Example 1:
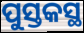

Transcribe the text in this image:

ପୁସ୍ତକସ୍ଥ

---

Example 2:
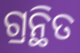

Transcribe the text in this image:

ଗ୍ରନ୍ଥିତ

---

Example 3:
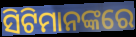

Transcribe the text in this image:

ସିଟିମାନଙ୍କରେ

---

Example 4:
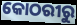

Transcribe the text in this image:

କୋଠରୀରୁ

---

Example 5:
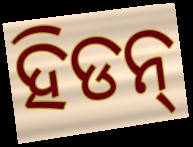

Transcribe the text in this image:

ହିଡନ୍